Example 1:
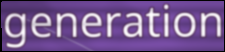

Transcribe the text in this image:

generation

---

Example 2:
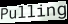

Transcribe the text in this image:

Pulling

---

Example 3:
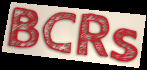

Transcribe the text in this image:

BCRs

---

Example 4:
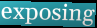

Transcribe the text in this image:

exposing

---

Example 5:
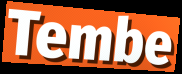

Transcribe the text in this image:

Tembe